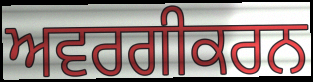
ਅਵਰਗੀਕਰਨ